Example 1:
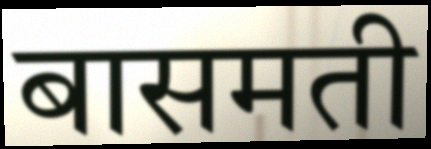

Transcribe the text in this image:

बासमती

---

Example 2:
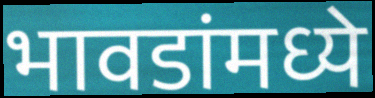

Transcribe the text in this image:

भावडांमध्ये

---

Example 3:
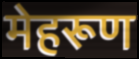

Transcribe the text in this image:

मेहरूण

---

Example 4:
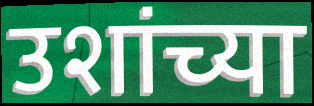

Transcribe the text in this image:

उशांच्या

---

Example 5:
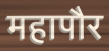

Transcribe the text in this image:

महापौर